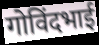
गोविंदभाई